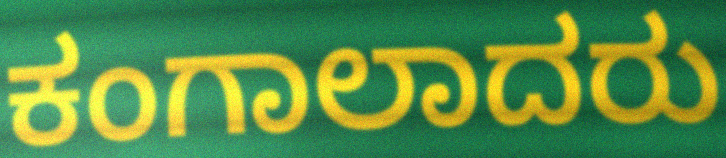
ಕಂಗಾಲಾದರು